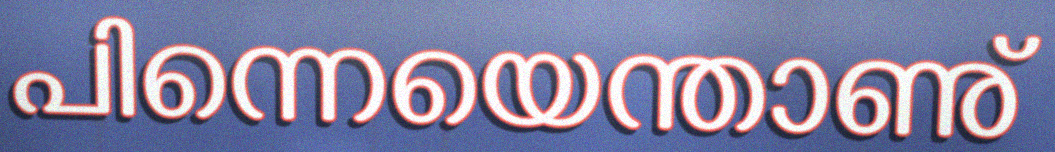
പിന്നെയെന്താണു്